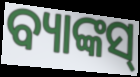
ବ୍ୟାଙ୍କସ୍